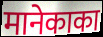
मानेकाका